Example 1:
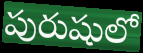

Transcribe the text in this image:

పురుషులో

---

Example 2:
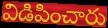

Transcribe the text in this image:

విడిపించారు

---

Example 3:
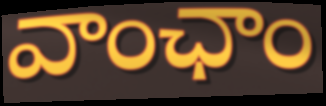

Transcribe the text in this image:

వాంఛాం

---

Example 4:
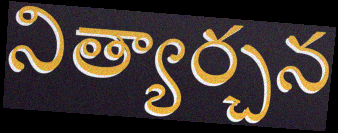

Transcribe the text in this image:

నిత్యార్చన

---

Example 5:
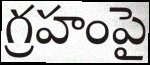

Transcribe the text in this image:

గ్రహంపై